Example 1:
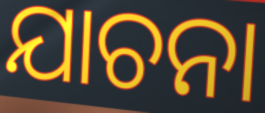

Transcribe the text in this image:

ଯାଚନା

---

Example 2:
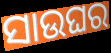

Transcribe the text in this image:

ସାଉଘର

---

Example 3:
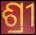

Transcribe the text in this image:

ଶ୍ରୀ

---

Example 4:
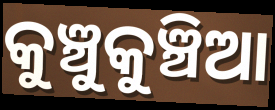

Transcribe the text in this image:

କୁଞ୍ଚୁକୁଞ୍ଚିଆ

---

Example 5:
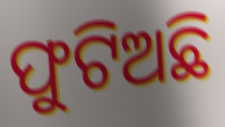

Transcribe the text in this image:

ଫୁଟିଅଛି